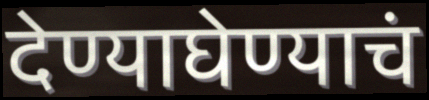
देण्याघेण्याचं